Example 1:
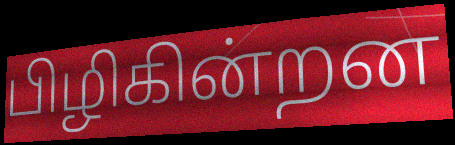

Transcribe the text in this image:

பிழிகின்றன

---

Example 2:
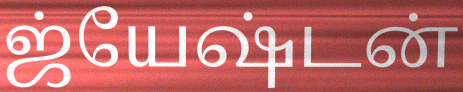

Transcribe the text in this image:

ஜ்யேஷ்டன்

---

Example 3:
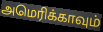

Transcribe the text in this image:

அமெரிக்காவும்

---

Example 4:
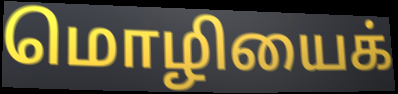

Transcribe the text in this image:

மொழியைக்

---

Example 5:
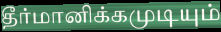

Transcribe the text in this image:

தீர்மானிக்கமுடியும்